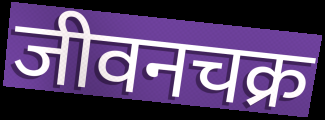
जीवनचक्र